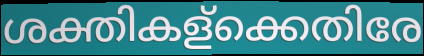
ശക്തികള്ക്കെതിരേ